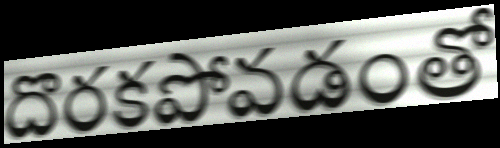
దొరకపోవడంతో